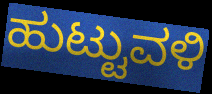
ಹುಟ್ಟುವಳಿ